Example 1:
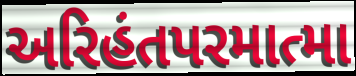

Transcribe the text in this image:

અરિહંતપરમાત્મા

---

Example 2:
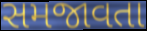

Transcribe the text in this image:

સમજાવતા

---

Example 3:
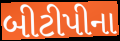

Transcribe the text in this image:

બીટીપીના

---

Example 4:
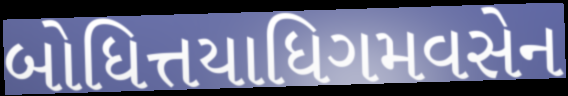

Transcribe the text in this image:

બોધિત્તયાધિગમવસેન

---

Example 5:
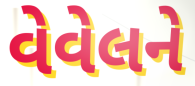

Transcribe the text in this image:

વેવેલને